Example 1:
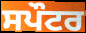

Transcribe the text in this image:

ਸਪੌਟਰ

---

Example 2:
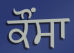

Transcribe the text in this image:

ਕੌਂਸਾ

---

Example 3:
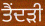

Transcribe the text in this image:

ਤੈਂਦੜੀ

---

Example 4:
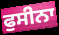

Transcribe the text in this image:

ਫੁਸੀਨਾ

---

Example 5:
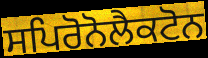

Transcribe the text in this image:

ਸਪਿਰੋਨੋਲੈਕਟੋਨ